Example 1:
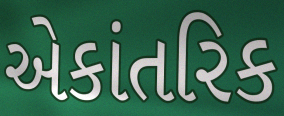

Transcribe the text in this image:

એકાંતરિક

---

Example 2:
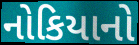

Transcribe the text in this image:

નોકિયાનો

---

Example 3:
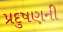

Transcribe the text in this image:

પ્રદુષણની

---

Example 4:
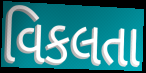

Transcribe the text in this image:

વિકલતા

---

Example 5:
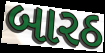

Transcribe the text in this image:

બારઠ